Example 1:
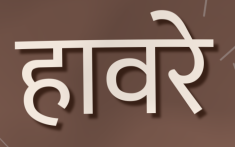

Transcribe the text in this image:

हावरे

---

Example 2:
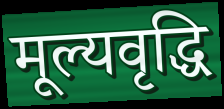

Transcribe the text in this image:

मूल्यवृद्धि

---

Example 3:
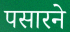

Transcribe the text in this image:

पसारने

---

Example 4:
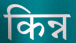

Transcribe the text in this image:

किन्न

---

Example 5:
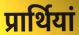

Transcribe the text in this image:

प्रार्थियां